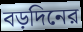
বড়দিনের